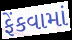
ફેંકવામાં